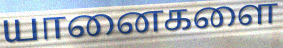
யானைகளை